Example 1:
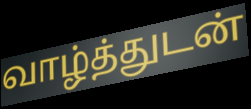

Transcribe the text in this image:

வாழ்த்துடன்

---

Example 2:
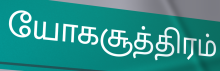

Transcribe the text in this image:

யோகசூத்திரம்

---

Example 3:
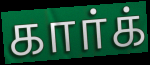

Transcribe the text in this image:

கார்க்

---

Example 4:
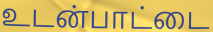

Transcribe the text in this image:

உடன்பாட்டை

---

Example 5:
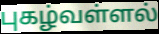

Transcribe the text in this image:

புகழ்வள்ளல்